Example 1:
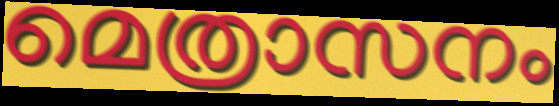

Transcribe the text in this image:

മെത്രാസനം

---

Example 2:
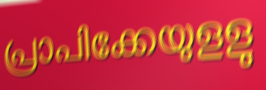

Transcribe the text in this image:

പ്രാപിക്കേയുളളു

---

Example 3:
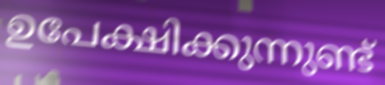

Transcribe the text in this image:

ഉപേക്ഷിക്കുന്നുണ്ട്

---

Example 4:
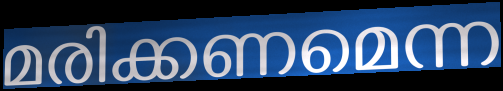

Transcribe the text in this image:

മരിക്കണമെന്ന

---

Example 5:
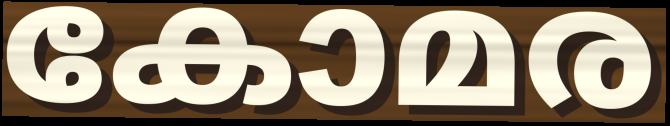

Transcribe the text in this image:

കോമര